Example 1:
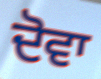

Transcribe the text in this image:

ਦੋਵਾ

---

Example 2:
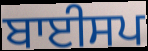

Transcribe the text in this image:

ਬਾਈਸਪ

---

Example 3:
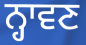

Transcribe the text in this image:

ਨ੍ਹਾਵਣ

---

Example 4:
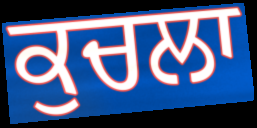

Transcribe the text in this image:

ਕੁਚਲਾ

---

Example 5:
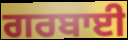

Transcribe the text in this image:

ਗਰਬਾਈ